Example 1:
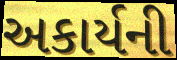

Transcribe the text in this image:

અકાર્યની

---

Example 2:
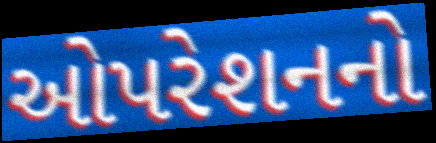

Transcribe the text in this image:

ઓપરેશનનો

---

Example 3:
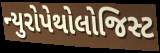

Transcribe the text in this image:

ન્યુરોપેથોલોજિસ્ટ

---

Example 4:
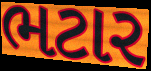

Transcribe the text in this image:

ભટાર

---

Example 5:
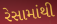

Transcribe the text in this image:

રેસામાંથી